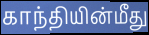
காந்தியின்மீது